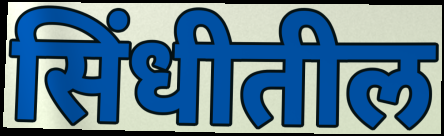
सिंधीतील